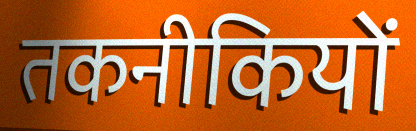
तकनीकियों